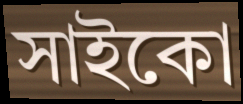
সাইকো